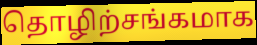
தொழிற்சங்கமாக